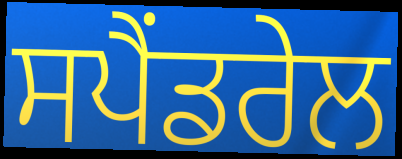
ਸਪੈਂਡਰੇਲ